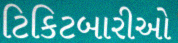
ટિકિટબારીઓ